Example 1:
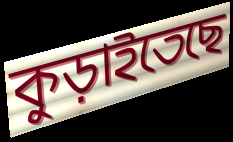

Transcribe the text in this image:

কুড়াইতেছে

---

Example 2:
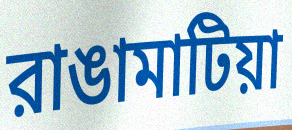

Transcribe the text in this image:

রাঙামাটিয়া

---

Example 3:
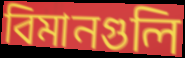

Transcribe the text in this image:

বিমানগুলি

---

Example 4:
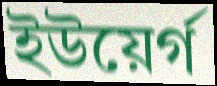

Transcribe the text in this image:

ইউয়ের্গ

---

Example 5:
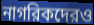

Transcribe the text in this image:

নাগরিকদেরও